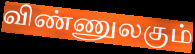
விண்ணுலகும்